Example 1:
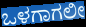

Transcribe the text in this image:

ಒಳಗಾಗಲೀ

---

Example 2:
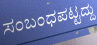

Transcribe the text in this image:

ಸಂಬಂಧಪಟ್ಟದ್ದು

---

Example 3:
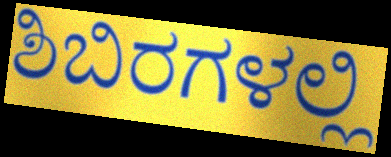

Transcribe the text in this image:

ಶಿಬಿರಗಳಲ್ಲಿ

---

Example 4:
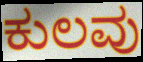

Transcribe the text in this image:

ಕುಲವು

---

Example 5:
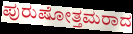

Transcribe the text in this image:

ಪುರುಷೋತ್ತಮರಾದ